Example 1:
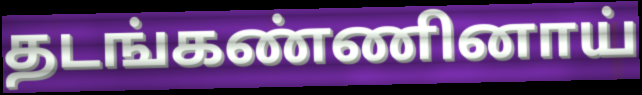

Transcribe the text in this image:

தடங்கண்ணினாய்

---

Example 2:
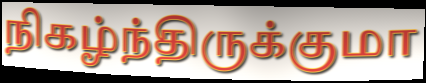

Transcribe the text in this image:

நிகழ்ந்திருக்குமா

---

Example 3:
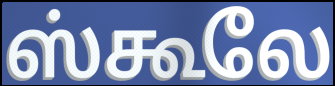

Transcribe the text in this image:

ஸ்கூலே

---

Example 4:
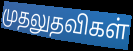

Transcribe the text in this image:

முதலுதவிகள்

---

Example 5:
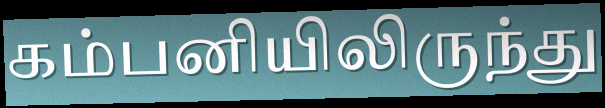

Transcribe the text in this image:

கம்பனியிலிருந்து